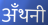
अँथनी